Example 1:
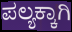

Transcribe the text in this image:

ಪಲ್ಯಕ್ಕಾಗಿ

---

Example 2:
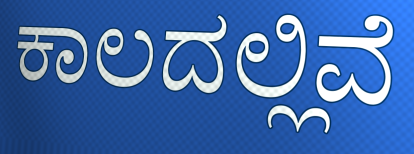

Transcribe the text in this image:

ಕಾಲದಲ್ಲಿವೆ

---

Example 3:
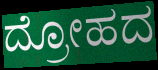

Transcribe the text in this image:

ದ್ರೋಹದ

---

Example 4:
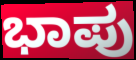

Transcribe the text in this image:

ಭಾಪು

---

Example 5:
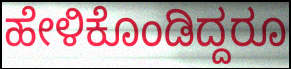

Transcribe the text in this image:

ಹೇಳಿಕೊಂಡಿದ್ದರೂ